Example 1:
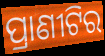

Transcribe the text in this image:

ପ୍ରାଣୀଟିର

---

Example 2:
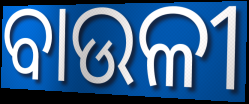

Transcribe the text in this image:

ବାଉଳୀ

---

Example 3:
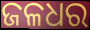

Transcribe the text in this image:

ଜଳଧର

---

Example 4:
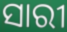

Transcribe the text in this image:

ସାରୀ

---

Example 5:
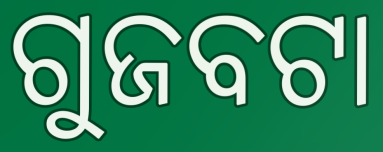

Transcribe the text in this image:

ଗୁଜବଟା